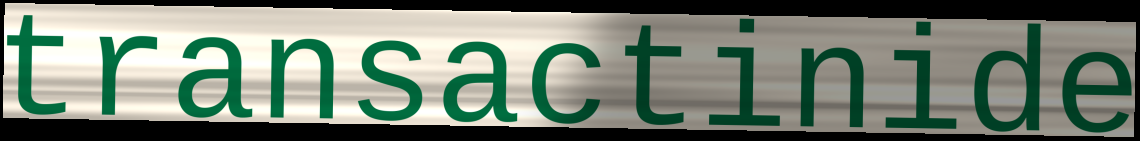
transactinide